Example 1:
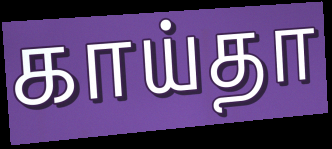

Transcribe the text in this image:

காய்தா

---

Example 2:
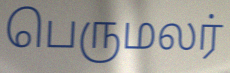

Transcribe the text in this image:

பெருமலர்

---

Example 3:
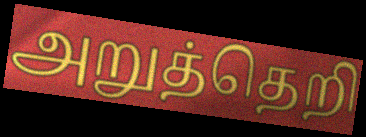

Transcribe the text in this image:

அறுத்தெறி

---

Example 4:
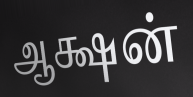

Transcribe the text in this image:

ஆக்ஷன்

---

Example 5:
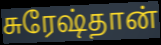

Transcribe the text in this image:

சுரேஷ்தான்